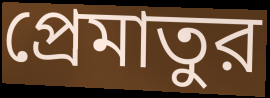
প্রেমাতুর